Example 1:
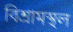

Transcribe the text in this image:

বিশ্রামস্থল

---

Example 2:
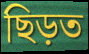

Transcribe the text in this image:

ছিড়ত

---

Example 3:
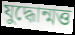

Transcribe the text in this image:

যুদ্ধোন্মত্ত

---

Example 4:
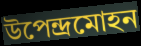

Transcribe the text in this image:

উপেন্দ্রমোহন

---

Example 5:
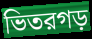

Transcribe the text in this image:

ভিতরগড়